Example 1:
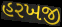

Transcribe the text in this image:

હરખજી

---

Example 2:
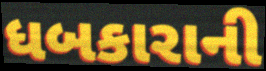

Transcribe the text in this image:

ધબકારાની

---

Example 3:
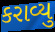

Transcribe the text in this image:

કરાવ્યુ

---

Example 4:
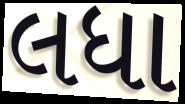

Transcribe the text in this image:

લધા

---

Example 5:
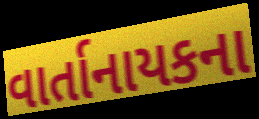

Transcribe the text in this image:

વાર્તાનાયકના